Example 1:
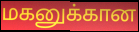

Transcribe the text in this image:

மகனுக்கான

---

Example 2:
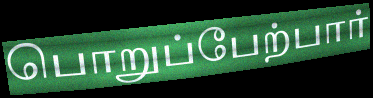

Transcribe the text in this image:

பொறுப்பேற்பார்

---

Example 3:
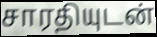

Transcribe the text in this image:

சாரதியுடன்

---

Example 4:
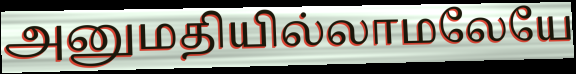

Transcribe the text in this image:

அனுமதியில்லாமலேயே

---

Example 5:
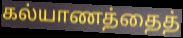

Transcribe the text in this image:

கல்யாணத்தைத்